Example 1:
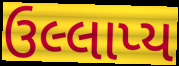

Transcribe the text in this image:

ઉલ્લાપ્ય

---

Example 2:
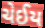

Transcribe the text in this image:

ચેઈય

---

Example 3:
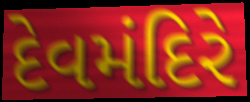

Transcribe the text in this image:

દેવમંદિરે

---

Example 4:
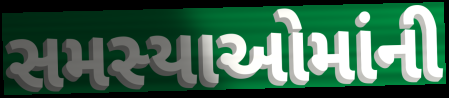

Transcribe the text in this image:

સમસ્યાઓમાંની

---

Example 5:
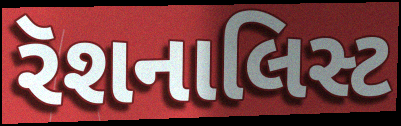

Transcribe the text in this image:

રૅશનાલિસ્ટ